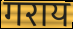
गराय